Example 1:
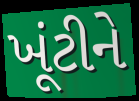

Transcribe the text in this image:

ખૂંટીને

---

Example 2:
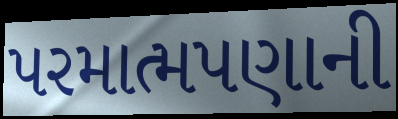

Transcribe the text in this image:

પરમાત્મપણાની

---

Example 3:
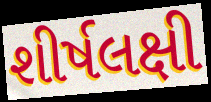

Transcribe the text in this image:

શીર્ષલક્ષી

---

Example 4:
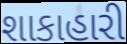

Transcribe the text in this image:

શાકાહારી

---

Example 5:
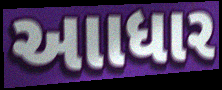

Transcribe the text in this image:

આાધાર